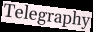
Telegraphy